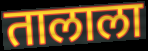
तालाला